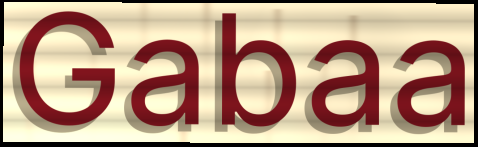
Gabaa